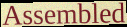
Assembled